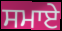
ਸਮਾਏ